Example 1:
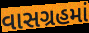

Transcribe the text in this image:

વાસગ્રહમાં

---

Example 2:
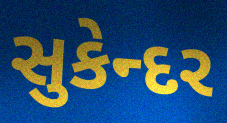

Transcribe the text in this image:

સુકેન્દર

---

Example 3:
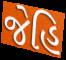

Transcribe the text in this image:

જેહિ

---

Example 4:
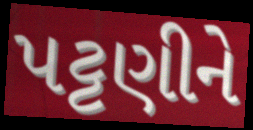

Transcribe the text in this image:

પટ્ટણીને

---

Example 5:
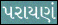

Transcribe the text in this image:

પરાયણં